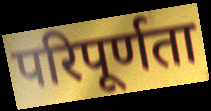
परिपूर्णता